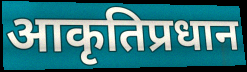
आकृतिप्रधान